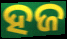
ହଜ